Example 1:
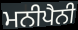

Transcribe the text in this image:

ਮਨੀਪੈਨੀ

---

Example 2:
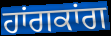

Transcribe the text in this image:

ਹਾਂਗਕਾਂਗ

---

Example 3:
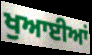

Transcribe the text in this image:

ਖੁਆਈਆਂ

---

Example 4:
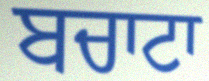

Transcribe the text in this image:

ਬਚਾਟਾ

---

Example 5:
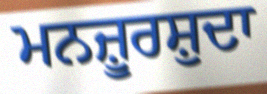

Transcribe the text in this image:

ਮਨਜ਼ੂਰਸ਼ੁਦਾ